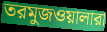
তরমুজওয়ালারা